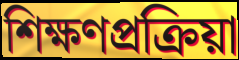
শিক্ষণপ্রক্রিয়া